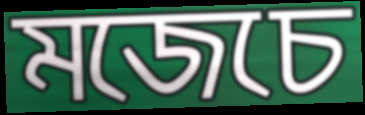
মজেচে